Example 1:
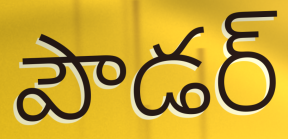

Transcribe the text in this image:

పౌడర్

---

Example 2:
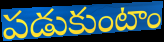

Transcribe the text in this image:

పడుకుంటాం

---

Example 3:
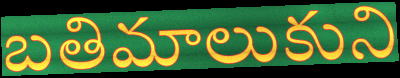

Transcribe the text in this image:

బతిమాలుకుని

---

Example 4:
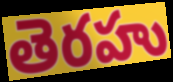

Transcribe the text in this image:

తెరహు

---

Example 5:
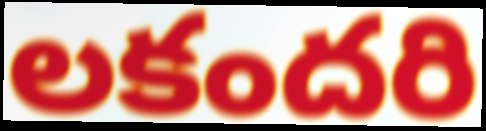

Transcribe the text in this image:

లకందరి